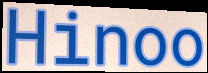
Hinoo